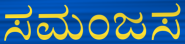
ಸಮಂಜಸ